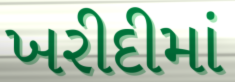
ખરીદીમાં